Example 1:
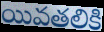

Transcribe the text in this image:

యివతలికి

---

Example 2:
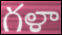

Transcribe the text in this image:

గళా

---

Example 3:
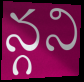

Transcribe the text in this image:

న్గని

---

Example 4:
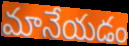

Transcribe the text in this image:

మానేయడం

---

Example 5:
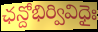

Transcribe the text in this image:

ఛన్దోభిర్వివిధైః